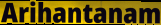
Arihantanam